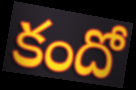
కందో